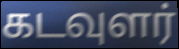
கடவுளர்